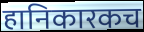
हानिकारकच